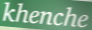
khenche